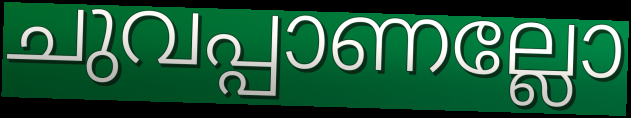
ചുവപ്പാണല്ലോ